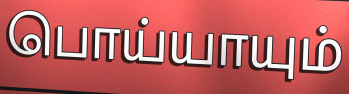
பொய்யாயும்